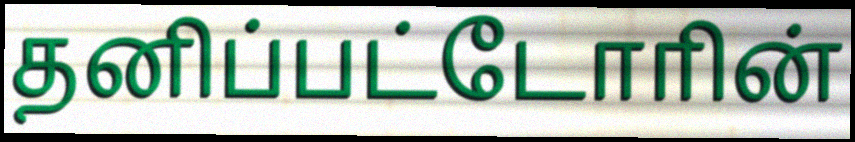
தனிப்பட்டோரின்